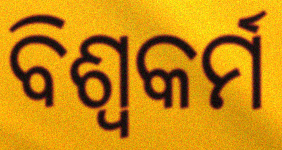
ବିଶ୍ୱକର୍ମ